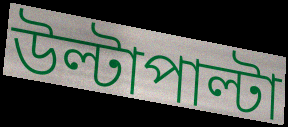
উল্টাপাল্টা